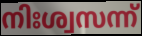
നിഃശ്വസന്ന്